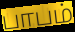
பாபம்